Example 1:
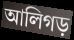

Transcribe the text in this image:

আলিগড়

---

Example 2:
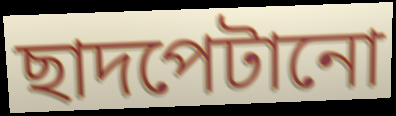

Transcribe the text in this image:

ছাদপেটানো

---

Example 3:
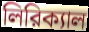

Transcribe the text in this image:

লিরিক্যাল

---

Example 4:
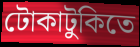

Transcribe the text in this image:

টোকাটুকিতে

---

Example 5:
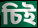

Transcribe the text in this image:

চিই